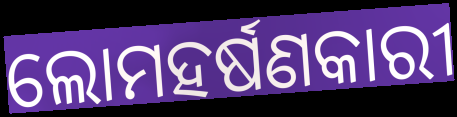
ଲୋମହର୍ଷଣକାରୀ